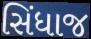
સિંધાજ